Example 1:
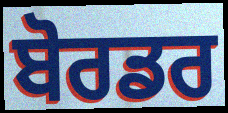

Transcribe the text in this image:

ਬੋਰਡਰ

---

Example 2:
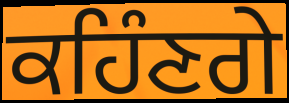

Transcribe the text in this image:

ਕਹਿੰਣਗੇ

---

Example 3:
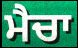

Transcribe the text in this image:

ਮੈਚਾ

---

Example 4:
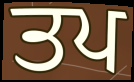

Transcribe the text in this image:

ਤਪ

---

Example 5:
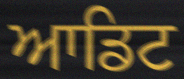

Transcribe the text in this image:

ਆਡਿਟ